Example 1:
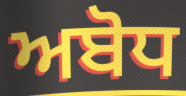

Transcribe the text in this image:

ਅਬੋਧ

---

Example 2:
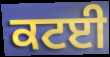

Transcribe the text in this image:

ਕਟਈ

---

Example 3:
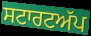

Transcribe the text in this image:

ਸਟਾਰਟਅੱਪ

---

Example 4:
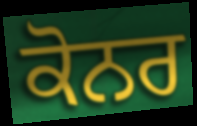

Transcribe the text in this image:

ਕੋਨਰ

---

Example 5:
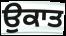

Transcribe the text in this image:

ਉਕਾਤ